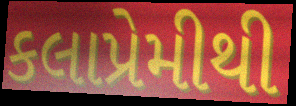
કલાપ્રેમીથી